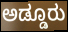
ಅಡ್ಡೂರು